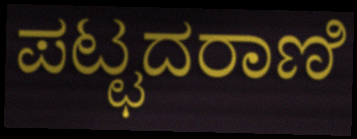
ಪಟ್ಟದರಾಣಿ